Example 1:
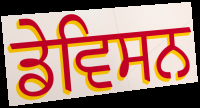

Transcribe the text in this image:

ਡੇਵਿਸਨ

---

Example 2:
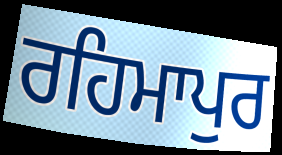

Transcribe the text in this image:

ਰਹਿਮਾਪੁਰ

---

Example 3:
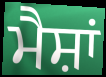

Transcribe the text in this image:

ਮੈਸ਼ਾਂ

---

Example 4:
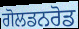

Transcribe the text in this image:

ਗੋਲਡਨਰੋਡ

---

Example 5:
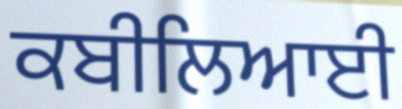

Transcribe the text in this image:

ਕਬੀਲਿਆਈ